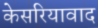
केसरियावाद